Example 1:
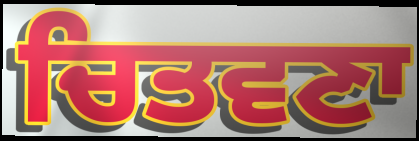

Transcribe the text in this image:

ਚਿਤਵਣਾ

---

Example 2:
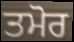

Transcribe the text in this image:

ਤਮੋਰ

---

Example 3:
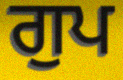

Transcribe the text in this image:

ਗੁਪ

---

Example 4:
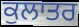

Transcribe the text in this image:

ਕੁਲਾਤਰ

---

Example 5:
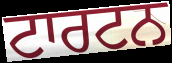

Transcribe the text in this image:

ਟਾਰਟਨ